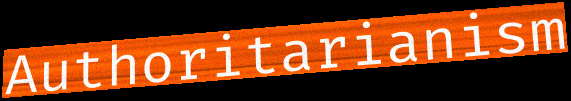
Authoritarianism